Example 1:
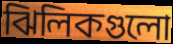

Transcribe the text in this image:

ঝিলিকগুলো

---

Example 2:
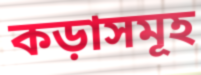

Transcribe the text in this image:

কড়াসমূহ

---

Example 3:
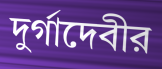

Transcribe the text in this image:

দুর্গাদেবীর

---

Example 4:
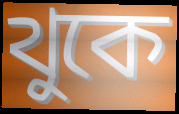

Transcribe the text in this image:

থুকে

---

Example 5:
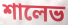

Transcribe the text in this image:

শালেভ